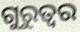
ଗୁରୁତ୍ବର